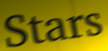
Stars